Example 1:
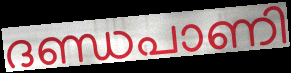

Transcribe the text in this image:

ദണ്ഡപാണി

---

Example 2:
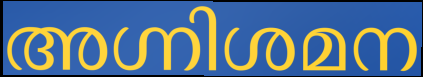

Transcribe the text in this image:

അഗ്നിശമന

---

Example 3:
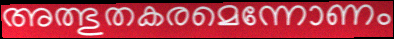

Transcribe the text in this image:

അത്ഭുതകരമെന്നോണം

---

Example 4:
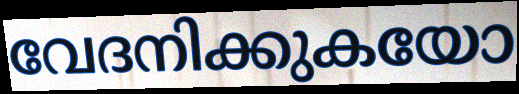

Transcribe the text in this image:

വേദനിക്കുകയോ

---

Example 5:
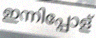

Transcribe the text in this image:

ഇന്നിപ്പോള്